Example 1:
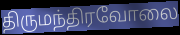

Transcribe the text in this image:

திருமந்திரவோலை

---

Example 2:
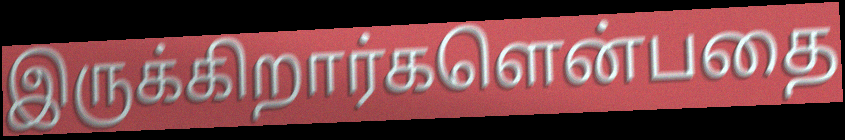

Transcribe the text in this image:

இருக்கிறார்களென்பதை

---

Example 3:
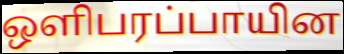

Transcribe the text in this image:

ஒளிபரப்பாயின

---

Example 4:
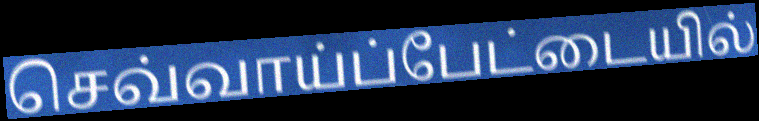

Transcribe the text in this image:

செவ்வாய்ப்பேட்டையில்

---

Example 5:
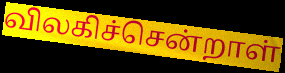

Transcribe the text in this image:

விலகிச்சென்றாள்